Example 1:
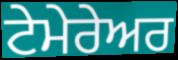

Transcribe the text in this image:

ਟੇਮੇਰੇਅਰ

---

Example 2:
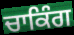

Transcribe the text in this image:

ਚਾਕਿੰਗ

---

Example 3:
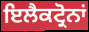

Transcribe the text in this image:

ਇਲੈਕਟ੍ਰੋਨਾਂ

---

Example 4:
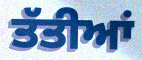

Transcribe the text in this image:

ਤੱਤੀਆਂ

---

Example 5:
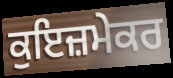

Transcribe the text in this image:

ਕੁਇਜ਼ਮੇਕਰ